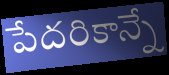
పేదరికాన్నే